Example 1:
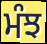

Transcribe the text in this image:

ਮੰਝ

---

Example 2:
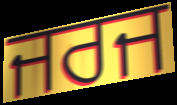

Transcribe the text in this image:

ਜਰਜ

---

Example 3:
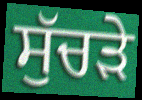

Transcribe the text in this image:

ਸੁੱਚੜੇ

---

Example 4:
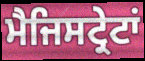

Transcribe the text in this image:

ਮੈਜਿਸਟ੍ਰੇਟਾਂ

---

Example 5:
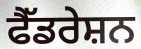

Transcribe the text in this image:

ਫੈੱਡਰੇਸ਼ਨ